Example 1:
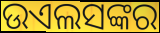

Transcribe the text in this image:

ଉଏଲସଙ୍କର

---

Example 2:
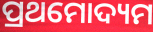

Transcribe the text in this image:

ପ୍ରଥମୋଦ୍ୟମ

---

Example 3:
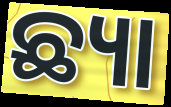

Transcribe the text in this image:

ଛ୍ୟା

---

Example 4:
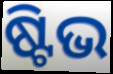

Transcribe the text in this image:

ଷ୍ଟିଭ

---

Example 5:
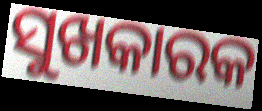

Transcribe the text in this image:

ସୁଖକାରକ